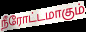
நீரோட்டமாகும்